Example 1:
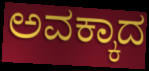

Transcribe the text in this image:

ಅವಕ್ಕಾದ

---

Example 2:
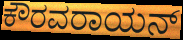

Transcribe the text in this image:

ಕೌರವರಾಯನ್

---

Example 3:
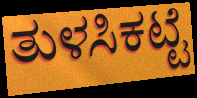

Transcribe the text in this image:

ತುಳಸಿಕಟ್ಟೆ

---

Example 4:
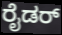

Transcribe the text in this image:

ರೈಡರ್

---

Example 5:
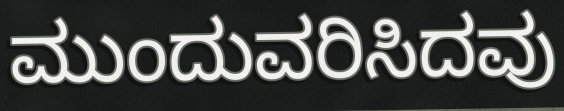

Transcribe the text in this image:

ಮುಂದುವರಿಸಿದವು